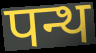
पन्थ